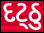
દટ્ઠુ